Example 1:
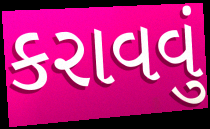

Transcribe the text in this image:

કરાવવું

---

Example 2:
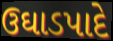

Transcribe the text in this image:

ઉઘાડપાદે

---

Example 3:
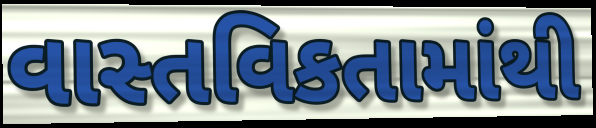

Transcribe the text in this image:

વાસ્તવિકતામાંથી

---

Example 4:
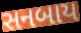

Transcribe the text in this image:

સનબાય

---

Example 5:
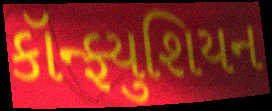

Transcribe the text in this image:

કૉન્ફ્યુશિયન